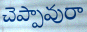
చెప్పావురా